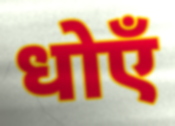
धोएँ